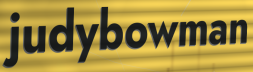
judybowman